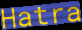
Hatra